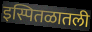
इस्पितळातली